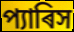
প্যাৰিস